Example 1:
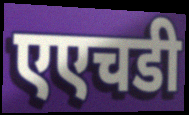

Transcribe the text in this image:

एएचडी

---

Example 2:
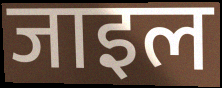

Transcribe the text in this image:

जाइल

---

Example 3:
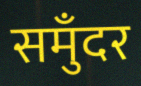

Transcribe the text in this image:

समुँदर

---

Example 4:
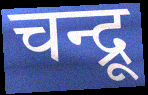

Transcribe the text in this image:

चन्द्रू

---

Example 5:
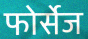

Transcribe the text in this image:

फोर्सेज